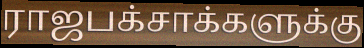
ராஜபக்சாக்களுக்கு